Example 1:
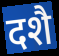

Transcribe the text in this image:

दशै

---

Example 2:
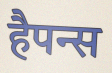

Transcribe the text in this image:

हैपन्स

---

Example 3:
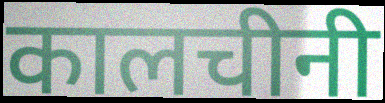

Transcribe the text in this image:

कालचीनी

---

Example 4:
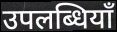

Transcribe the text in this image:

उपलब्धियाँ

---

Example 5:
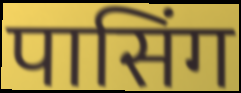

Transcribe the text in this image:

पासिंग